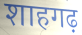
शाहगढ़